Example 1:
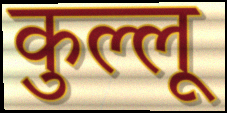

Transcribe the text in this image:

कुल्लू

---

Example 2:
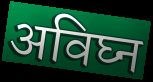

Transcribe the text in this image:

अविघ्न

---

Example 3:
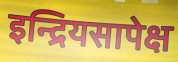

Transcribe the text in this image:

इन्द्रियसापेक्ष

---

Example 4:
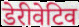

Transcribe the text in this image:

डेरीवेटिव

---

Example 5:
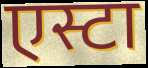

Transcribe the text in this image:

एस्टा